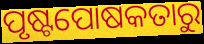
ପୃଷ୍ଟପୋଷକତାରୁ